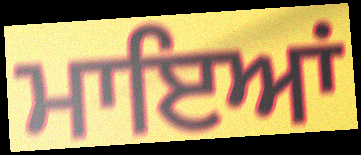
ਮਾਇਆਂ